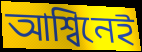
আশ্বিনেই